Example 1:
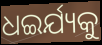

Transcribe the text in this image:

ଧଇର୍ଯ୍ୟକୁ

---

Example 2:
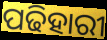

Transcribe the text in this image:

ପଢିହାରୀ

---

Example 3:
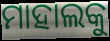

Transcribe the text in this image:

ମାହାଲକୁ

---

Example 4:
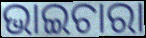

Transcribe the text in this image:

ଭାଇଚାରା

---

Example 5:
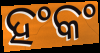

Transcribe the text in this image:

ହଂକଂ